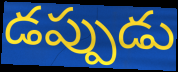
డప్పుడు